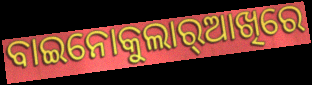
ବାଇନୋକୁଲାର୍‌ଆଖିରେ